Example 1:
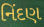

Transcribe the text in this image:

નિંદણ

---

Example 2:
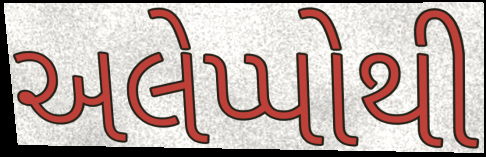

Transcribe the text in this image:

અલેપ્પોથી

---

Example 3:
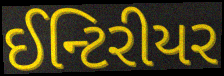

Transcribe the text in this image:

ઈન્ટિરીયર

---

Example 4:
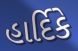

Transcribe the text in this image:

હાર્દિકે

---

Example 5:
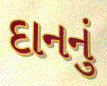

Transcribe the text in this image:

દાનનું